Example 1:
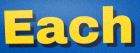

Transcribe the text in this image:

Each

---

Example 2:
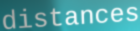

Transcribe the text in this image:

distances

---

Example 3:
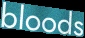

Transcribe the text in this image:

bloods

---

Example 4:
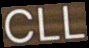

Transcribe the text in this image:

CLL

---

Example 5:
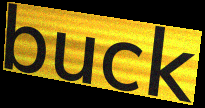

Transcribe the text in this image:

buck